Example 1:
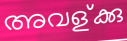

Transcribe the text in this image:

അവള്ക്കു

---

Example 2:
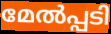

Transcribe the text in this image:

മേൽപ്പടി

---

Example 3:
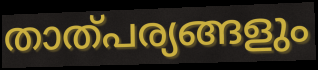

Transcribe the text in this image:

താത്പര്യങ്ങളും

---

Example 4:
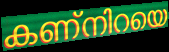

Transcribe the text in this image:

കണ്നിറയെ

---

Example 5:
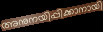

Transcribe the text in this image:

അനുനയിപ്പിക്കാനായി